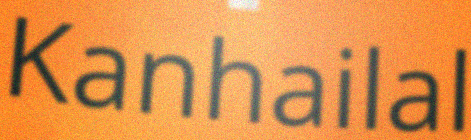
Kanhailal